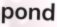
pond